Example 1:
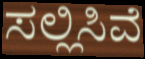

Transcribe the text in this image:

ಸಲ್ಲಿಸಿವೆ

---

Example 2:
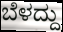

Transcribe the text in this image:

ಬೆಳದ್ದು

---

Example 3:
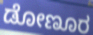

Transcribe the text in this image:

ಡೋಣೂರ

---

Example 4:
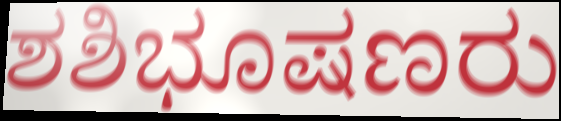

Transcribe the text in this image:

ಶಶಿಭೂಷಣರು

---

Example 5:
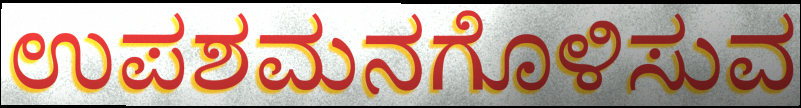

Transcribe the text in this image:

ಉಪಶಮನಗೊಳಿಸುವ